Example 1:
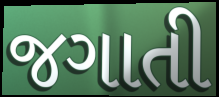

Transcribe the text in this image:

જગાતી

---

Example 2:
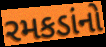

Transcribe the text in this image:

રમકડાંનો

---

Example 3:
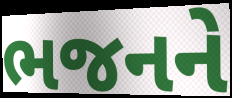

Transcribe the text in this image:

ભજનને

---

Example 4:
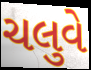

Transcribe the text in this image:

ચલુવે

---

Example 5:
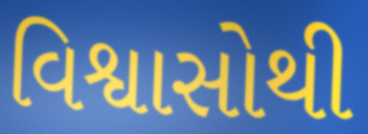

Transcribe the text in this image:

વિશ્વાસોથી